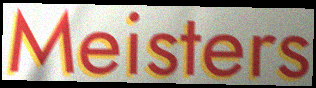
Meisters